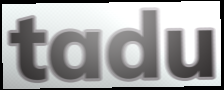
tadu